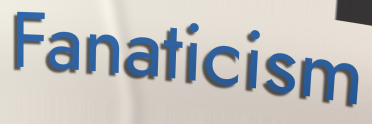
Fanaticism